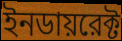
ইনডায়রেক্ট